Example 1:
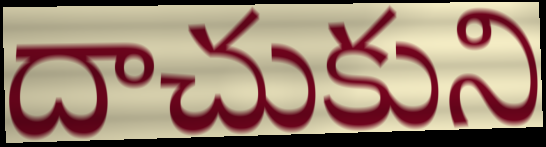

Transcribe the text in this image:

దాచుకుని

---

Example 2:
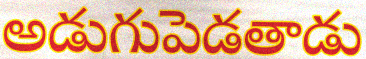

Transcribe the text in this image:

అడుగుపెడతాడు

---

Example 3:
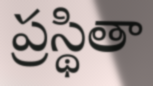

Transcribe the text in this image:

ప్రస్థితా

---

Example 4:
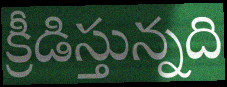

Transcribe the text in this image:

క్రీడిస్తున్నది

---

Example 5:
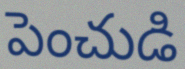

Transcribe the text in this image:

పెంచుడి